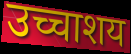
उच्चाशय